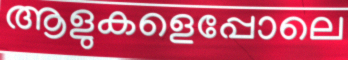
ആളുകളെപ്പോലെ